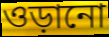
ওড়ানো